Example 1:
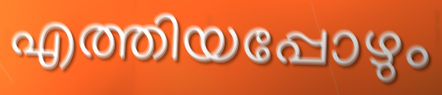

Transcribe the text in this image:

എത്തിയപ്പോഴും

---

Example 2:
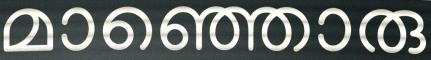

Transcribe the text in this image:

മാഞ്ഞൊരു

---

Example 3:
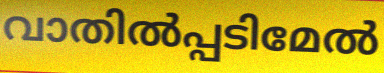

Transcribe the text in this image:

വാതിൽപ്പടിമേൽ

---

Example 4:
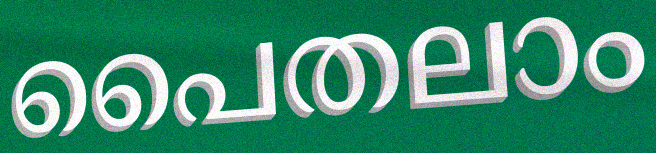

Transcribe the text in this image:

പൈതലാം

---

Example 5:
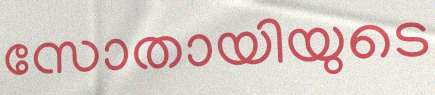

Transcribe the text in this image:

സോതായിയുടെ